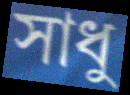
সাধু